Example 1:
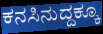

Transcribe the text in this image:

ಕನಸಿನುದ್ದಕ್ಕೂ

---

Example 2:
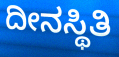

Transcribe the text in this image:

ದೀನಸ್ಥಿತಿ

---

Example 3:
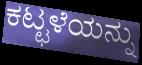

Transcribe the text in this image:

ಕಟ್ಟಳೆಯನ್ನು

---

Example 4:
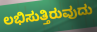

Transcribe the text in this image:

ಲಭಿಸುತ್ತಿರುವುದು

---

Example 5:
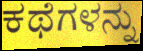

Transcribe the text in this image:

ಕಥೆಗಳನ್ನು